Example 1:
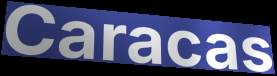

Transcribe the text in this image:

Caracas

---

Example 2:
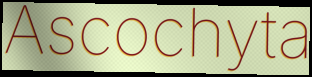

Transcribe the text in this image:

Ascochyta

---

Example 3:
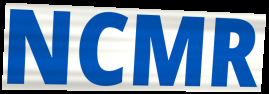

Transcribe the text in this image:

NCMR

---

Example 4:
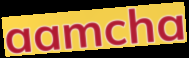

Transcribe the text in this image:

aamcha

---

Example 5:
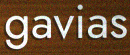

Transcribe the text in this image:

gavias